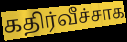
கதிர்வீச்சாக